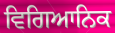
ਵਿਗਿਆਨਿਕ